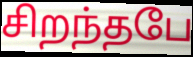
சிறந்தபே